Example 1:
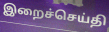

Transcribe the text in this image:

இறைச்செய்தி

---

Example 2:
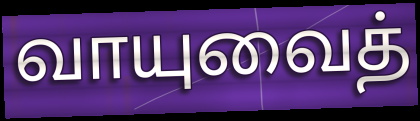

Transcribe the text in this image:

வாயுவைத்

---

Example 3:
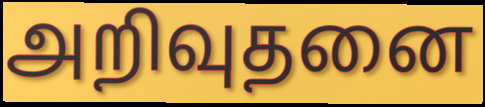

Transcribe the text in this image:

அறிவுதனை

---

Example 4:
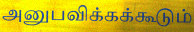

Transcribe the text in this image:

அனுபவிக்கக்கூடும்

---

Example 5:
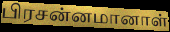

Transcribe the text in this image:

பிரசன்னமானாள்